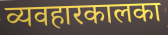
व्यवहारकालका